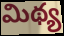
మిథ్య